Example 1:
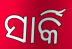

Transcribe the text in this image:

ସାର୍କି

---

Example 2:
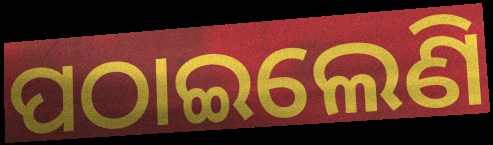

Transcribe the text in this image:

ପଠାଇଲେଣି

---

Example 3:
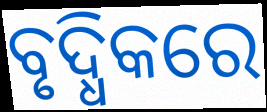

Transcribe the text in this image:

ବୃଦ୍ଧିକରେ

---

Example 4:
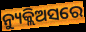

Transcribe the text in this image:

ନ୍ୟୁକ୍ଲିଅସରେ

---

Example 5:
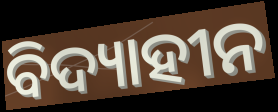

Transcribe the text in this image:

ବିଦ୍ୟାହୀନ